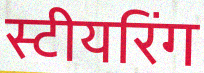
स्टीयरिंग